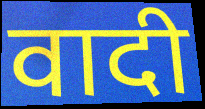
वादी